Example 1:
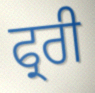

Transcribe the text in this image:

ਫ੍ਰਰੀ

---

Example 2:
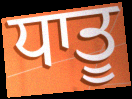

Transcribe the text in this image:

ਧਾਤੂ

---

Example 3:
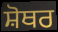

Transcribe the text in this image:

ਸ਼ੋਥਰ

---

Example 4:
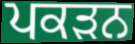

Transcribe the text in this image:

ਪਕੜਨ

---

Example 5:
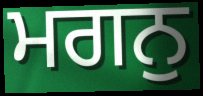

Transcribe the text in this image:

ਮਗਨੁ